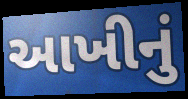
આખીનું